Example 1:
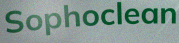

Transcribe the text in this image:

Sophoclean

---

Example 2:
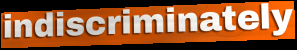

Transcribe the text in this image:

indiscriminately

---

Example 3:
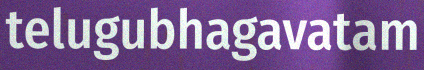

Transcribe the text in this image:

telugubhagavatam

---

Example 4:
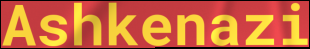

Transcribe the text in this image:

Ashkenazi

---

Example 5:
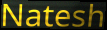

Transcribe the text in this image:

Natesh